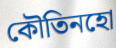
কৌতিনহো